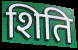
शिति